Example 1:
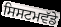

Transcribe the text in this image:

ਸਿਸਟਮਵੱਡੇ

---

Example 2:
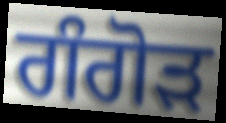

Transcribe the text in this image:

ਗੰਗੋੜ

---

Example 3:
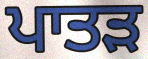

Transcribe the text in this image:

ਪਾਤੜ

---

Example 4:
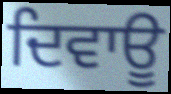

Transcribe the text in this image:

ਦਿਵਾਊ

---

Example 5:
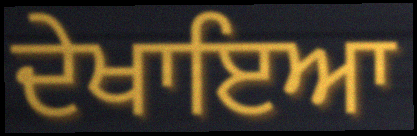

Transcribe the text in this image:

ਦੇਖਾਇਆ